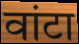
वांटा